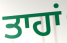
ਤਾਹਾਂ